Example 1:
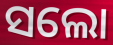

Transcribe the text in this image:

ସଲୋ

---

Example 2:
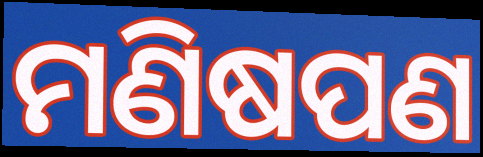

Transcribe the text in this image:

ମଣିଷପଣ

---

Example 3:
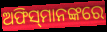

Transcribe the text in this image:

ଅଫିସ୍‌ମାନଙ୍କରେ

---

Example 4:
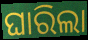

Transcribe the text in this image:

ଘାରିଲା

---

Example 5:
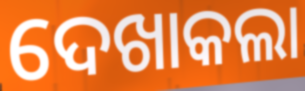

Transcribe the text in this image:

ଦେଖାକଲା